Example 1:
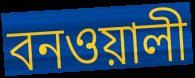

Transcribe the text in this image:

বনওয়ালী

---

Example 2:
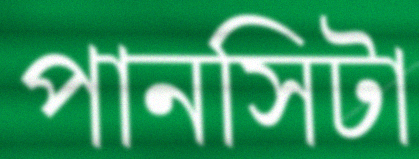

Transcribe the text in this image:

পানসিটা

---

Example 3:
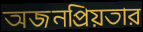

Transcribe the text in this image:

অজনপ্রিয়তার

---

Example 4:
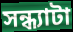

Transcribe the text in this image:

সন্ধ্যাটা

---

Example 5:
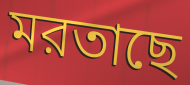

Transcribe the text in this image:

মরতাছে